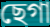
ছেগা